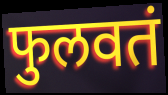
फुलवतं